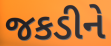
જકડીને